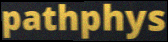
pathphys